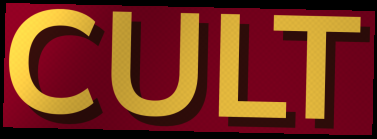
CULT